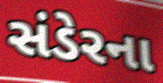
સંડેરના